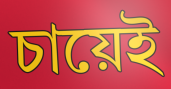
চায়েই